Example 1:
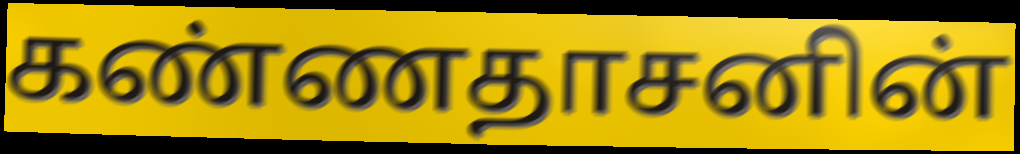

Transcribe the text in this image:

கண்ணதாசனின்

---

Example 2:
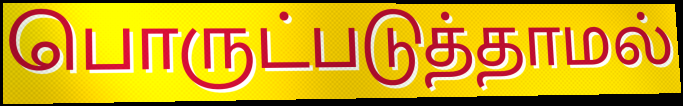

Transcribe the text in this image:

பொருட்படுத்தாமல்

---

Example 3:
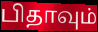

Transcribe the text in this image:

பிதாவும்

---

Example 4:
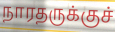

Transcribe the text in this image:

நாரதருக்குச்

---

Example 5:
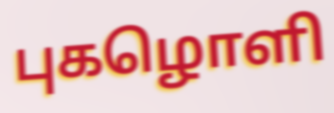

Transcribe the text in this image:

புகழொளி